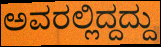
ಅವರಲ್ಲಿದ್ದದ್ದು